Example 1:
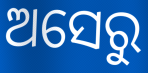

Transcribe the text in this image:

ଅସେରୁ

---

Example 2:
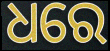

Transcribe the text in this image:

ଧରେ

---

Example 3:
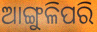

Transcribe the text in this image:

ଆଙ୍ଗୁଳିପରି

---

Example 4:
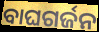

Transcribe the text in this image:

ବାଘଗର୍ଜନ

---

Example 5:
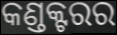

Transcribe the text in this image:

କଣ୍ଡକ୍ଟରର